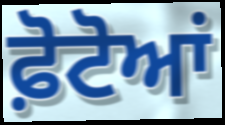
ਫ਼ੋਟੋਆਂ